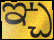
ఞ్చ